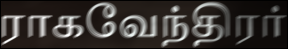
ராகவேந்திரர்